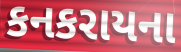
કનકરાયના